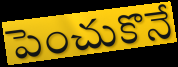
పెంచుకొనే